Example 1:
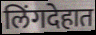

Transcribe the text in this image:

लिंगदेहात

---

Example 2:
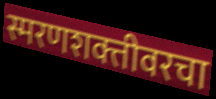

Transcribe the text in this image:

स्मरणशक्तीवरचा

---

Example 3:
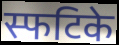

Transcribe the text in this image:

स्फटिके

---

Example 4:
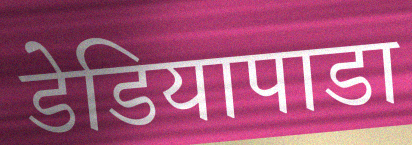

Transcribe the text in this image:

डेडियापाडा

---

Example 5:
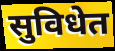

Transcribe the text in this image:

सुविधेत